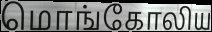
மொங்கோலிய